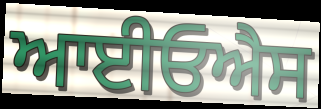
ਆਈਓਐਸ